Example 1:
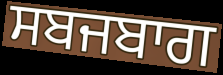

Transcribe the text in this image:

ਸਬਜਬਾਗ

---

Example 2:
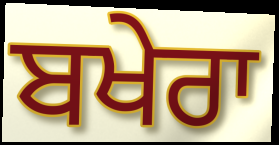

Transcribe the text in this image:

ਬਖੇਰਾ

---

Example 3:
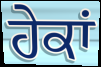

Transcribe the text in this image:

ਹੇਕਾਂ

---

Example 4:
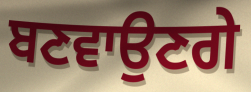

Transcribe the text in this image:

ਬਣਵਾਉਣਗੇ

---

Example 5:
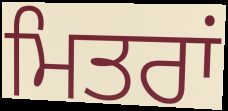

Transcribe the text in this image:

ਮਿਤਰਾਂ